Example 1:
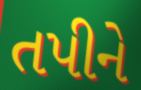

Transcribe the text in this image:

તપીને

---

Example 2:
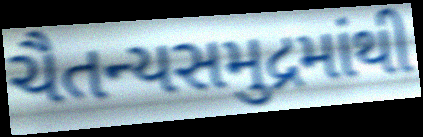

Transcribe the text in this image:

ચૈતન્યસમુદ્રમાંથી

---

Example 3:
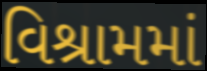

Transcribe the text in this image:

વિશ્રામમાં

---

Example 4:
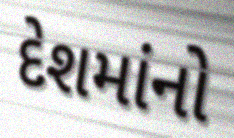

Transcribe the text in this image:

દેશમાંનો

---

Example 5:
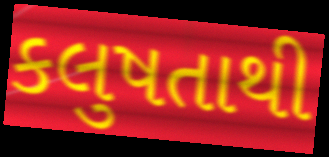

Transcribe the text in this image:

કલુષતાથી